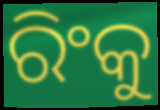
ରିଂକୁ